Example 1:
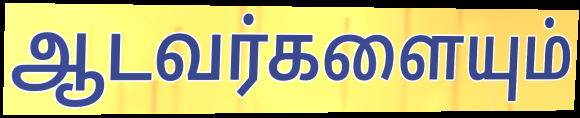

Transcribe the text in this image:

ஆடவர்களையும்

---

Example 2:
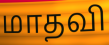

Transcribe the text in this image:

மாதவி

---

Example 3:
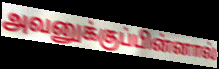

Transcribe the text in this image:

அவனுக்குப்பின்னால்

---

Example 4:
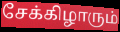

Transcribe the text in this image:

சேக்கிழாரும்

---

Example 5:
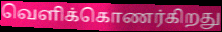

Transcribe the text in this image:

வெளிக்கொணர்கிறது